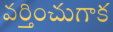
వర్తించుగాక